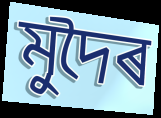
মুদৈৰ